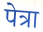
पेत्रा